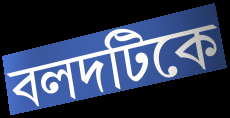
বলদটিকে